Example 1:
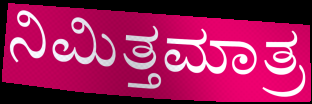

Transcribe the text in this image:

ನಿಮಿತ್ತಮಾತ್ರ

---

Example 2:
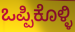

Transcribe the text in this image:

ಒಪ್ಪಿಕೊಳ್ಳಿ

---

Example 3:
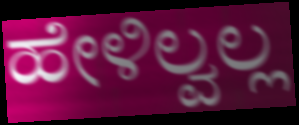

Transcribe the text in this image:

ಹೇಳಿಲ್ವಲ್ಲ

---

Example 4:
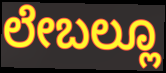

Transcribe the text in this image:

ಲೇಬಲ್ಲೂ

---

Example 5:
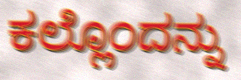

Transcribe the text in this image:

ಕಲ್ಲೊಂದನ್ನು